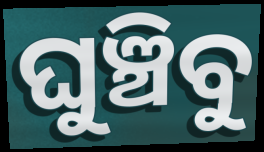
ଘୁଞ୍ଚିବୁ